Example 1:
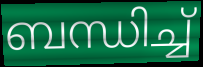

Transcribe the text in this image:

ബന്ധിച്ച്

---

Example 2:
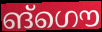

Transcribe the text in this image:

ങ്ഗൌ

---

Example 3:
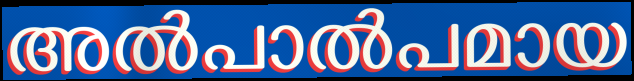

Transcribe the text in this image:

അൽപാൽപമായ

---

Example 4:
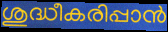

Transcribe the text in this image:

ശുദ്ധീകരിപ്പാൻ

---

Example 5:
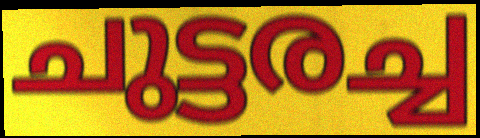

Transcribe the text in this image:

ചുട്ടരച്ച